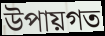
উপায়গত